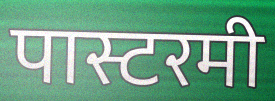
पास्टरमी